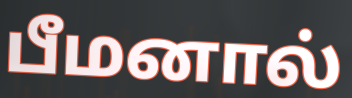
பீமனால்